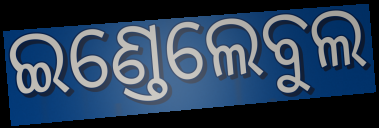
ଇଣ୍ଡେଲେବୁଲ